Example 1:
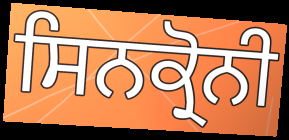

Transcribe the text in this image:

ਸਿਨਕ੍ਰੋਨੀ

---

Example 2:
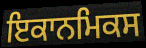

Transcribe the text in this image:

ਇਕਾਨਮਿਕਸ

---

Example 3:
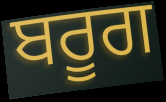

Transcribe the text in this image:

ਬਰੂਗ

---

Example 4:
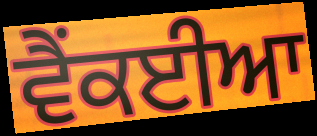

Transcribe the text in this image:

ਵੈਂਕਈਆ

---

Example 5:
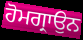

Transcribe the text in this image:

ਹੋਮਗ੍ਰਾਉਨ